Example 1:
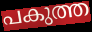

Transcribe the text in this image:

പകുത്ത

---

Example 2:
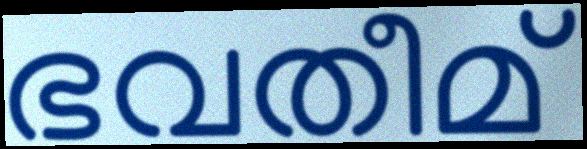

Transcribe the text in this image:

ഭവതീമ്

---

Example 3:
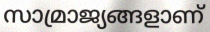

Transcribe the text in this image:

സാമ്രാജ്യങ്ങളാണ്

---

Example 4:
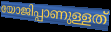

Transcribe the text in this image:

യോജിപ്പാണുള്ളത്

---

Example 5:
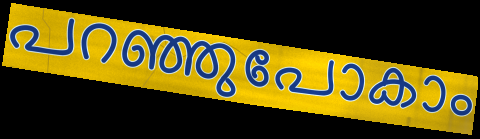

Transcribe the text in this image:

പറഞ്ഞുപോകാം